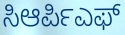
ಸಿಆರ್ಪಿಎಫ್